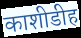
काशीडीह